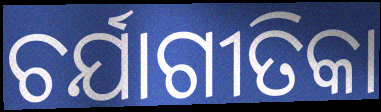
ଚର୍ଯାଗୀତିକା